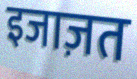
इजाज़त